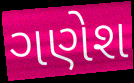
ગણેશ